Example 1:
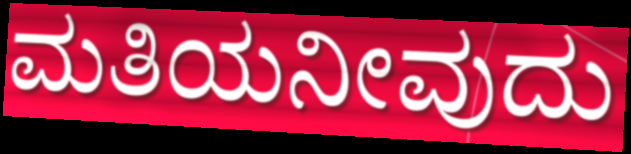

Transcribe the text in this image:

ಮತಿಯನೀವುದು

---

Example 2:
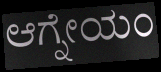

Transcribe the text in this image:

ಆಗ್ನೇಯಂ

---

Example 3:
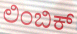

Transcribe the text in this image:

ಲಿಂಬಿಕ್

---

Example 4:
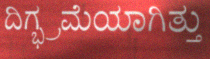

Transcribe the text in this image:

ದಿಗ್ಭ್ರಮೆಯಾಗಿತ್ತು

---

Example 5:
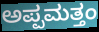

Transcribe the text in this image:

ಅಪ್ಪಮತ್ತಂ